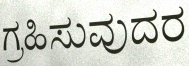
ಗ್ರಹಿಸುವುದರ